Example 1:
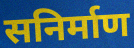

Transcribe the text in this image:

सनिर्माण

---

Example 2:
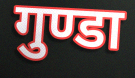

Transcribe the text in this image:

गुण्डा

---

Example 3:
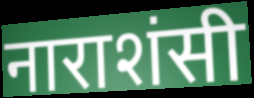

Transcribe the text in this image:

नाराशंसी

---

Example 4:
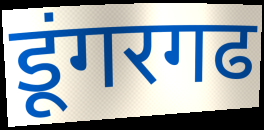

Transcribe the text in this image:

डूंगरगढ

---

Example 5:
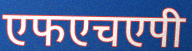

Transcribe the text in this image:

एफएचएपी